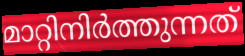
മാറ്റിനിർത്തുന്നത്